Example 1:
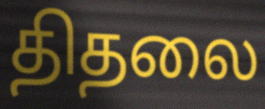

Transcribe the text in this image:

திதலை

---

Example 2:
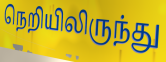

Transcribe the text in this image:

நெறியிலிருந்து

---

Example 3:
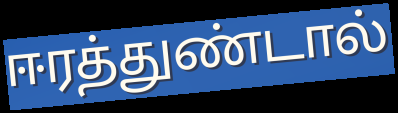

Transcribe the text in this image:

ஈரத்துண்டால்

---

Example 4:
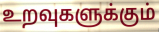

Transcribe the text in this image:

உறவுகளுக்கும்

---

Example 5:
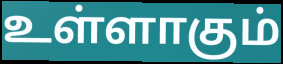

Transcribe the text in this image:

உள்ளாகும்